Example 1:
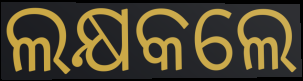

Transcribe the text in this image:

ଲକ୍ଷକଲେ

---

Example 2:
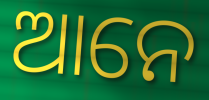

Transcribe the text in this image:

ଆନେ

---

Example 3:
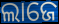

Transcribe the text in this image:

ଲାଜେ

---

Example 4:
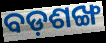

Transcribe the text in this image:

ବଡ଼ଶଙ୍ଖ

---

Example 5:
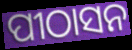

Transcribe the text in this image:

ପୀଠାସନ